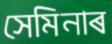
সেমিনাৰ